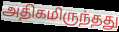
அதிகமிருந்தது